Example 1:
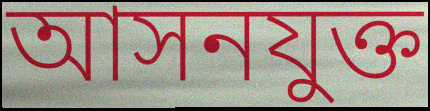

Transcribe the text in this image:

আসনযুক্ত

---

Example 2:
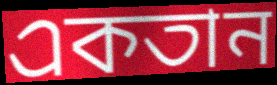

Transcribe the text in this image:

একতান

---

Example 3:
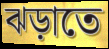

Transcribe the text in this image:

ঝড়াতে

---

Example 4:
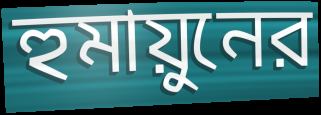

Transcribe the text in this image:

হুমায়ুনের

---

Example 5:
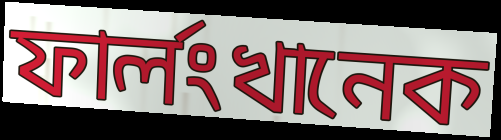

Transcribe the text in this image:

ফার্লংখানেক